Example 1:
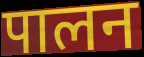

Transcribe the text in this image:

पालन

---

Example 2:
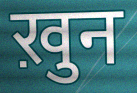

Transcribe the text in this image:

ख़ुन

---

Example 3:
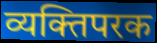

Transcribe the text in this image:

व्यक्तिपरक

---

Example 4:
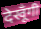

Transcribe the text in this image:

देखूँगी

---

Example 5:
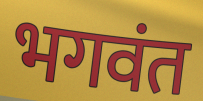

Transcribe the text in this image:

भगवंत